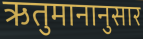
ऋतुमानानुसार